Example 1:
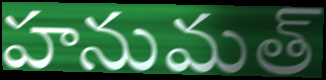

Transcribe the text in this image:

హనుమత్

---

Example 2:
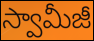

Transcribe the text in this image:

స్వామీజీ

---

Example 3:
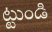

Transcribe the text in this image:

ట్టుండి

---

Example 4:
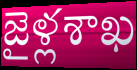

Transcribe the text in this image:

జైళ్లశాఖ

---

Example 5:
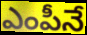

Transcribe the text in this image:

ఎంపీనే